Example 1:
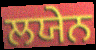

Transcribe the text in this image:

ਲਯੇਨ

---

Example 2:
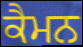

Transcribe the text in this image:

ਕੈਮਨ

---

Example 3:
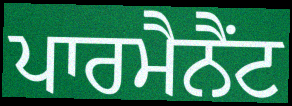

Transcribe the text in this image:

ਪਾਰਮੈਨੈਂਟ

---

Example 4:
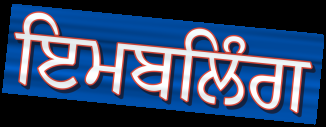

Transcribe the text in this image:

ਇਮਬਲਿੰਗ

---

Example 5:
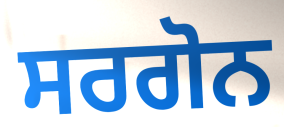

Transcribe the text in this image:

ਸਰਗੋਨ